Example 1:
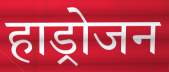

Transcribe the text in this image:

हाड्रोजन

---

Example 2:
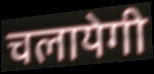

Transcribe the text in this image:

चलायेगी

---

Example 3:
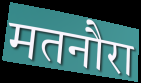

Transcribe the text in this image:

मतनौरा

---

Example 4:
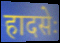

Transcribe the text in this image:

हादसेः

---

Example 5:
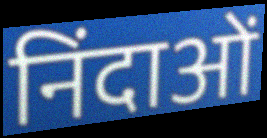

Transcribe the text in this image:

निंदाओं